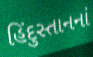
હિંદુસ્તાનનાં